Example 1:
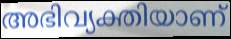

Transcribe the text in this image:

അഭിവ്യക്തിയാണ്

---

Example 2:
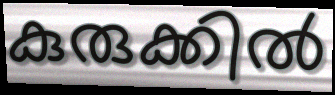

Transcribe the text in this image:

കുരുക്കിൽ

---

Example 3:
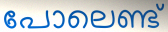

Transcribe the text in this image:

പോലെണ്ട്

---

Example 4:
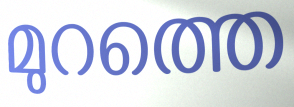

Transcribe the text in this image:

മുറത്തെ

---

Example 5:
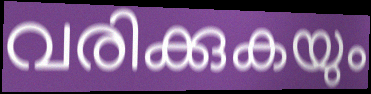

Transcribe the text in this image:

വരിക്കുകയും